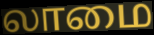
லாமை